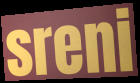
sreni